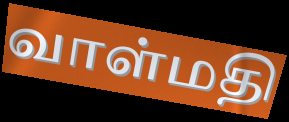
வாள்மதி